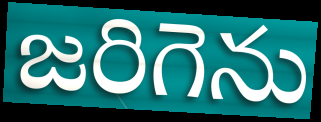
జరిగెను